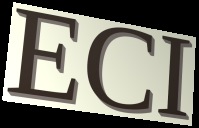
ECI